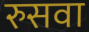
रुसवा